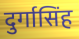
दुर्गासिंह